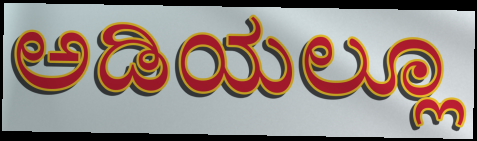
ಅಡಿಯಲ್ಲೂ